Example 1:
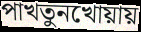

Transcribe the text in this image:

পাখতুনখোয়ায়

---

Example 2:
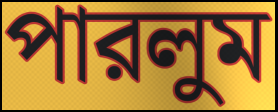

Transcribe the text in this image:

পারলুম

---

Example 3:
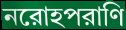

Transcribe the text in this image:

নরোহপরাণি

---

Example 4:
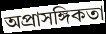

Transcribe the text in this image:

অপ্রাসঙ্গিকতা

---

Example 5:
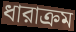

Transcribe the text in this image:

ধারাক্রম